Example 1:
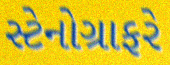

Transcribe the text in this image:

સ્ટેનોગ્રાફરે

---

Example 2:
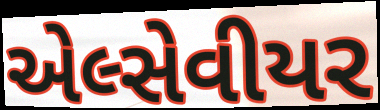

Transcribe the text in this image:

એલ્સેવીયર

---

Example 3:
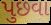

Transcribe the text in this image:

પુછવા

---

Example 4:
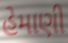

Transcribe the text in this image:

હેમાણી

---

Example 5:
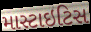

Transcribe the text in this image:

માસ્ટાઇટિસ